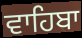
ਵਾਹਿਬਾ